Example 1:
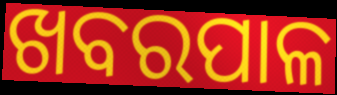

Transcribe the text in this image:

ଖବରପାଳ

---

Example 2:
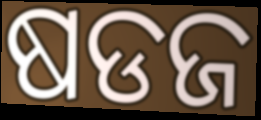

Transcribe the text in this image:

ଷଡଜ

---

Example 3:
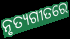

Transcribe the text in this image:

ନୃତ୍ୟଗୀତରେ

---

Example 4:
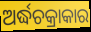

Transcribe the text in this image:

ଅର୍ଦ୍ଧଚକ୍ରାକାର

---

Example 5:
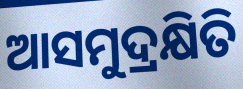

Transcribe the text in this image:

ଆସମୁଦ୍ରକ୍ଷିତି